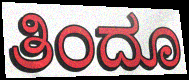
ತಿಂದೂ